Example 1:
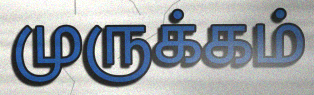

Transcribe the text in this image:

முருக்கம்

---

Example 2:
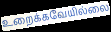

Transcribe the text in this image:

உறைக்கவேயில்லை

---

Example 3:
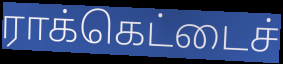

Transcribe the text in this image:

ராக்கெட்டைச்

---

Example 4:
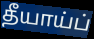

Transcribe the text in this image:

தீயாய்ப்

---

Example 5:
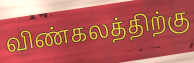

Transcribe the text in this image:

விண்கலத்திற்கு